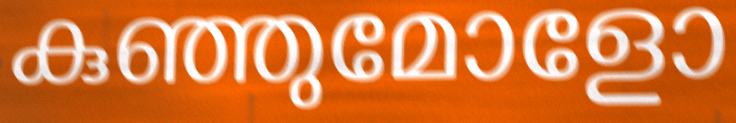
കുഞ്ഞുമോളോ